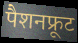
पैशनफ्रूट